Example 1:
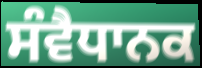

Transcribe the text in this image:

ਸੰਵੈਧਾਨਕ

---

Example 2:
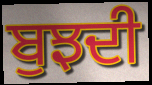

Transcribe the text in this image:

ਬੁਝਦੀ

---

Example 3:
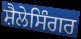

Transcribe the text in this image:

ਸ਼ੈਲੇਸਿੰਗਰ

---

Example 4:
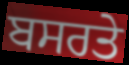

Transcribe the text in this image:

ਬਸਰਤੇ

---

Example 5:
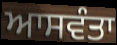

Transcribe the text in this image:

ਆਸਵੰਤਾ